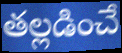
తల్లడించే